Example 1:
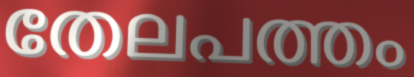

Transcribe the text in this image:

തേലപത്തം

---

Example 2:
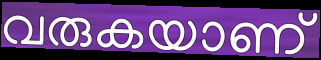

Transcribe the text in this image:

വരുകയാണ്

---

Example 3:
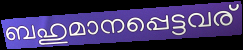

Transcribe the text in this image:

ബഹുമാനപ്പെട്ടവര്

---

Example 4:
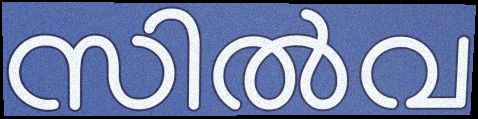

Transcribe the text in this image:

സിൽവ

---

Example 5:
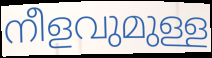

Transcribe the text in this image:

നീളവുമുള്ള